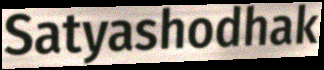
Satyashodhak